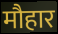
मौहार